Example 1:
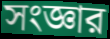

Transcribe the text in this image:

সংজ্ঞার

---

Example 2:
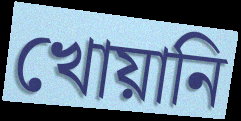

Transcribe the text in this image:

খোয়ানি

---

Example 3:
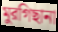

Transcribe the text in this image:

মুরগিছানা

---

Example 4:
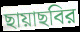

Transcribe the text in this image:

ছায়াছবির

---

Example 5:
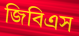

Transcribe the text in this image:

জিবিএস